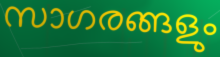
സാഗരങ്ങളും